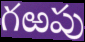
గఱపు